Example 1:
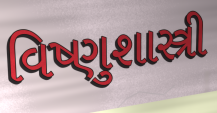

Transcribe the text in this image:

વિષ્ણુશાસ્ત્રી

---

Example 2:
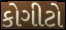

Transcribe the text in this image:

કોગીટો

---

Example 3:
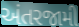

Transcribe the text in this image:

અંતરજામી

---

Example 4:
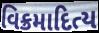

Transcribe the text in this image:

વિક્રમાદિત્ય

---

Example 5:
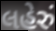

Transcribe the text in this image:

લહેરું